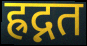
ह्रद्नत